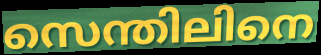
സെന്തിലിനെ